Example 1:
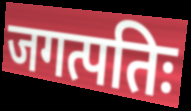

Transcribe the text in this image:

जगत्पतिः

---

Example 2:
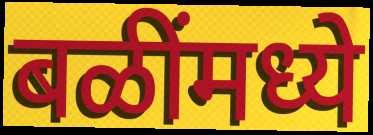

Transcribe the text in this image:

बळींमध्ये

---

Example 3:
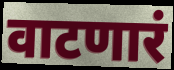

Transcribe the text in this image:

वाटणारं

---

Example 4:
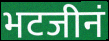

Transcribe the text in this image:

भटजीनं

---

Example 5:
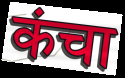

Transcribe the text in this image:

कंचा